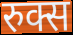
रुक्स